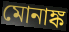
মোনাঙ্ক